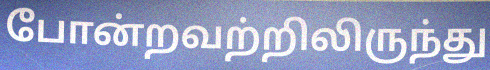
போன்றவற்றிலிருந்து